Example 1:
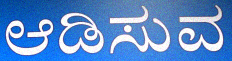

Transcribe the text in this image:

ಆಡಿಸುವ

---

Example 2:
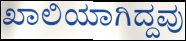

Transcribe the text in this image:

ಖಾಲಿಯಾಗಿದ್ದವು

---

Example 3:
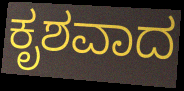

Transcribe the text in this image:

ಕೃಶವಾದ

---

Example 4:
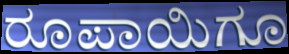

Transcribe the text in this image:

ರೂಪಾಯಿಗೂ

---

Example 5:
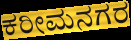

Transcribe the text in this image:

ಕರೀಮನಗರ